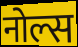
नोल्स